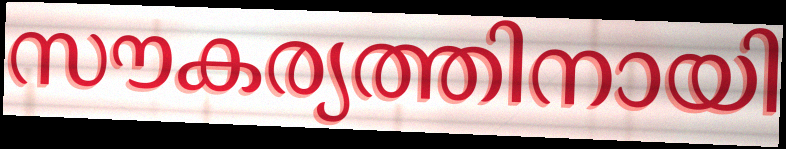
സൗകര്യത്തിനായി